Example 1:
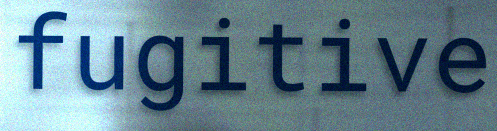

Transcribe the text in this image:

fugitive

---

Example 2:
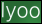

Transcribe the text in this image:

lyoo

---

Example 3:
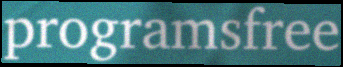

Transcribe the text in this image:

programsfree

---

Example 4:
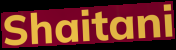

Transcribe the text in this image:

Shaitani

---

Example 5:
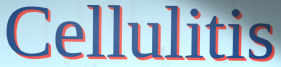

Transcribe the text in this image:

Cellulitis